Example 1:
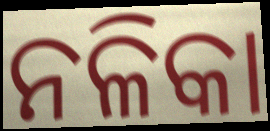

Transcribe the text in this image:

ନଳିକା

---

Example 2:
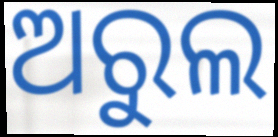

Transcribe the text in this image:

ଅରୁଲ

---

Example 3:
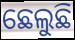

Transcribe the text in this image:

ଛେଲୁଛି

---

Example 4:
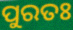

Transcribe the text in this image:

ପୁରତଃ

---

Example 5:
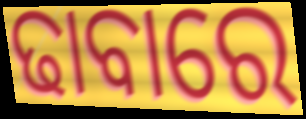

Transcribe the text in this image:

ଢାବାରେ